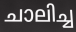
ചാലിച്ച